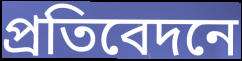
প্রতিবেদনে